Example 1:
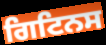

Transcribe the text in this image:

ਗਿਟਿਨਸ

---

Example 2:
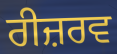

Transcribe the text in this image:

ਰੀਜ਼ਰਵ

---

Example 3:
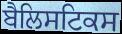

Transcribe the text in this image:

ਬੈਲਿਸਟਿਕਸ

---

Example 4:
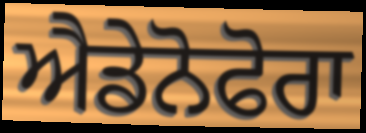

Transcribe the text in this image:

ਐਡੇਨੋਫੋਰਾ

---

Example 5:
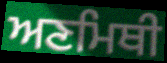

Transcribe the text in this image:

ਅਣਮਿਥੀ